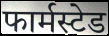
फार्मस्टेड